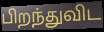
பிறந்துவிட